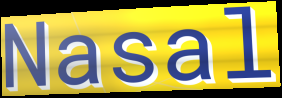
Nasal